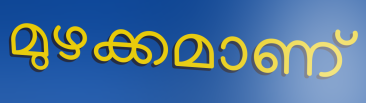
മുഴക്കമാണ്